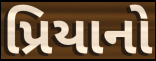
પ્રિયાનો